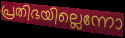
പ്രതിഭയില്ലെന്നോ